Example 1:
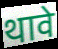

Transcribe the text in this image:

थावे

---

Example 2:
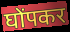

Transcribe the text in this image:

घोंपकर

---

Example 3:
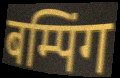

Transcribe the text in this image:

बम्पिंग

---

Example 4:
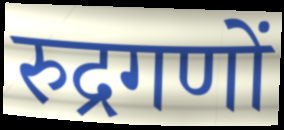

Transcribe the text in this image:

रुद्रगणों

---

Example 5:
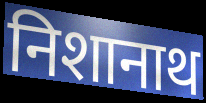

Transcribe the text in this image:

निशानाथ